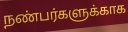
நண்பர்களுக்காக